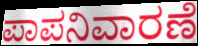
ಪಾಪನಿವಾರಣೆ